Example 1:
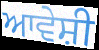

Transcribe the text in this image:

ਆਵੇਸ਼ੀ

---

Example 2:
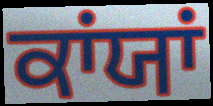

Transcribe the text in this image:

ਕਾਂਯਾਂ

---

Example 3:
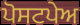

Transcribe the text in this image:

ਪੋਸਟਪੇਅ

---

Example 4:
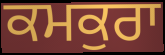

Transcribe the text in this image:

ਕਮਕੁਰਾ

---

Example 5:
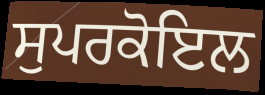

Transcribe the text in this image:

ਸੁਪਰਕੋਇਲ